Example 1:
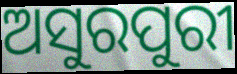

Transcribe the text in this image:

ଅସୁରପୁରୀ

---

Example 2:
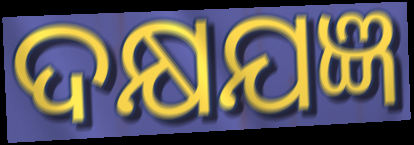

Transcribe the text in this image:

ଦକ୍ଷଯଜ୍ଞ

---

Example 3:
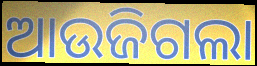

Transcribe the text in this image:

ଆଉଜିଗଲା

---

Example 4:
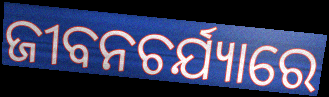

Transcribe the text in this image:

ଜୀବନଚର୍ଯ୍ୟାରେ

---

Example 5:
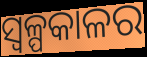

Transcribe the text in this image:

ସ୍ୱଳ୍ପକାଳର